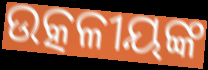
ଉତ୍କଳୀୟଙ୍କ